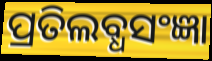
ପ୍ରତିଲବ୍ଧସଂଜ୍ଞା